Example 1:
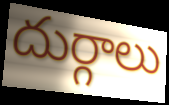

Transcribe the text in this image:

దుర్గాలు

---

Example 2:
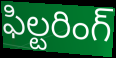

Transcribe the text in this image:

ఫిల్టరింగ్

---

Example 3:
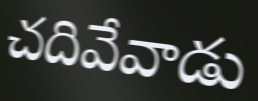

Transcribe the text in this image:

చదివేవాడు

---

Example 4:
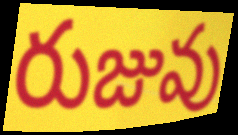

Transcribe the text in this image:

రుజువు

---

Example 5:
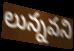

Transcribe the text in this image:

లున్నవని